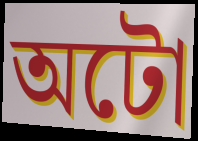
অটো